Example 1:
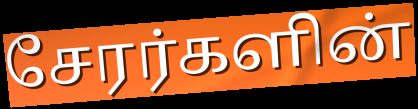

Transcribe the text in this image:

சேரர்களின்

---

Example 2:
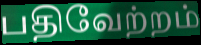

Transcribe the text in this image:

பதிவேற்றம்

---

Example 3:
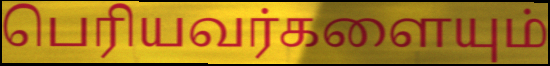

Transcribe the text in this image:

பெரியவர்களையும்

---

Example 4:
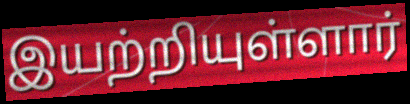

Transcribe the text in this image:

இயற்றியுள்ளார்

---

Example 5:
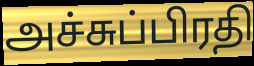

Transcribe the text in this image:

அச்சுப்பிரதி